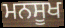
ਮਨਸੂਖ